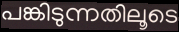
പങ്കിടുന്നതിലൂടെ